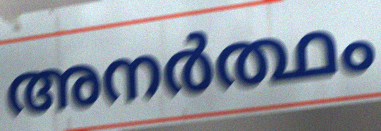
അനർത്ഥം